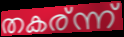
തകര്ന്ന്